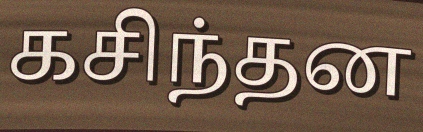
கசிந்தன